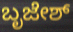
ಬೃಜೇಶ್